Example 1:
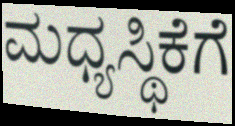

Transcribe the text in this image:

ಮಧ್ಯಸ್ಥಿಕೆಗೆ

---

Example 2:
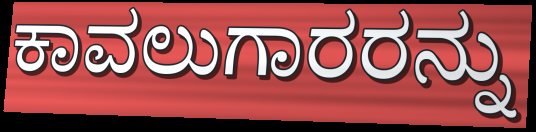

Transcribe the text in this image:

ಕಾವಲುಗಾರರನ್ನು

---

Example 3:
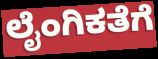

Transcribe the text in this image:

ಲೈಂಗಿಕತೆಗೆ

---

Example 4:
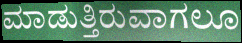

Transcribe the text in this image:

ಮಾಡುತ್ತಿರುವಾಗಲೂ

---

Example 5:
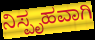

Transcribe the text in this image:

ನಿಸ್ಪೃಹವಾಗಿ